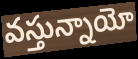
వస్తున్నాయో